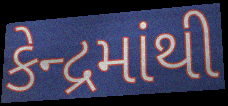
કેન્દ્રમાંથી